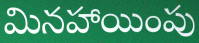
మినహాయింపు